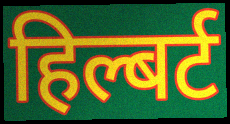
हिल्बर्ट